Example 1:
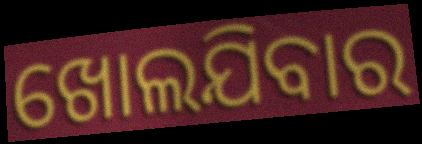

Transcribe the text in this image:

ଖୋଲଯିବାର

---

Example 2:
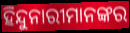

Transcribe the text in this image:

ହିନ୍ଦୁନାରୀମାନଙ୍କର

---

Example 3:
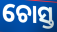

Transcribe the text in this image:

ଚୋସ୍ତ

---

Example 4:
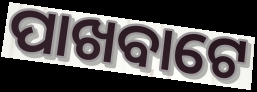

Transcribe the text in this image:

ପାଖବାଟେ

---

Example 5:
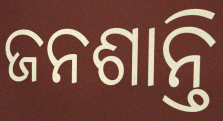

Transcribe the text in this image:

ଜନଶାନ୍ତି